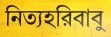
নিত্যহরিবাবু